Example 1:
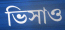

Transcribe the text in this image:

ভিসাও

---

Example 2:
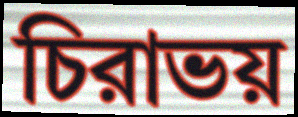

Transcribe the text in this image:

চিরাভয়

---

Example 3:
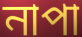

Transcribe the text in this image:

নাপা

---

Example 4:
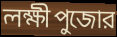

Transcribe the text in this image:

লক্ষীপুজোর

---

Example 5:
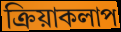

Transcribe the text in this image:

ক্রিয়াকলাপ